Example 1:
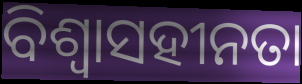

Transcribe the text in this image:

ବିଶ୍ୱାସହୀନତା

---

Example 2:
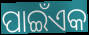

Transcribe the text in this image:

ପାଇଁଏକ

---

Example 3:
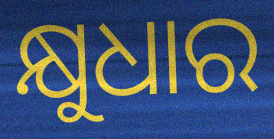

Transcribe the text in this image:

କ୍ଷୁଧାର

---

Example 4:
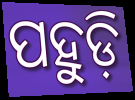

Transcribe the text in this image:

ପହୁଡ଼ି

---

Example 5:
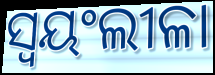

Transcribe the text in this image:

ସ୍ବୟଂଲୀଳା